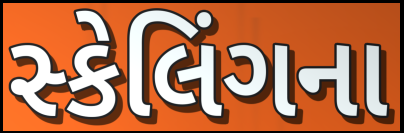
સ્કેલિંગના